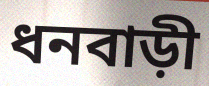
ধনবাড়ী